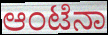
ಆಂಟೆನಾ